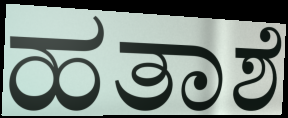
ಹತಾಶೆ